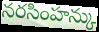
నరసింహన్కు